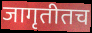
जागृतीतच